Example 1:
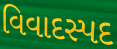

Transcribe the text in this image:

વિવાદસ્પદ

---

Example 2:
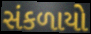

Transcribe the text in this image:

સંકળાયો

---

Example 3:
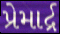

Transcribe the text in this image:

પ્રેમાર્દ્ર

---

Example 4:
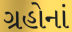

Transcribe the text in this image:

ગ્રહોનાં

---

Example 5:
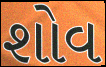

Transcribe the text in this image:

શોવ